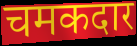
चमकदार